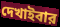
দেখাইবার